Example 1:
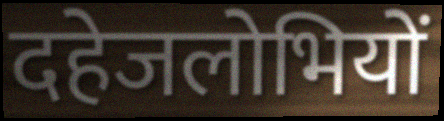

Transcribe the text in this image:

दहेजलोभियों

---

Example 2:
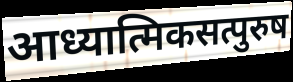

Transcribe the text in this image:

आध्यात्मिकसत्पुरुष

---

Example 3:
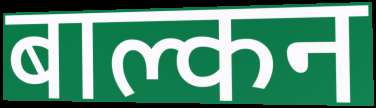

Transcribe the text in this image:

बाल्कन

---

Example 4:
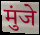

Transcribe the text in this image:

मुंजे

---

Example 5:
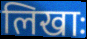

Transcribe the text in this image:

लिखाः